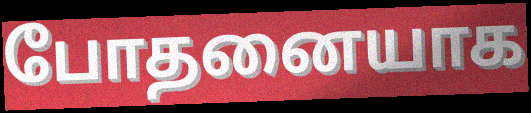
போதனையாக